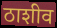
ठाशीव